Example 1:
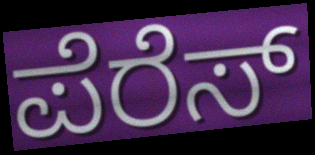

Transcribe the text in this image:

ಪೆರೆಸ್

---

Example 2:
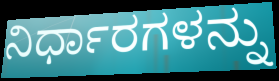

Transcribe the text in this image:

ನಿರ್ಧಾರಗಳನ್ನು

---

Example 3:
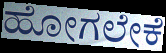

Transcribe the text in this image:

ಹೋಗಲೇಕೆ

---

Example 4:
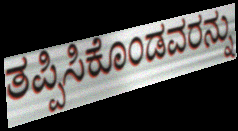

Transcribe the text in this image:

ತಪ್ಪಿಸಿಕೊಂಡವರನ್ನು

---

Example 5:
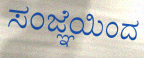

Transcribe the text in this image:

ಸಂಜ್ಞೆಯಿಂದ